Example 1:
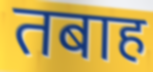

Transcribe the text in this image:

तबाह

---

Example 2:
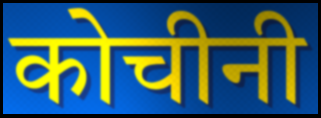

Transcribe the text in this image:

कोचीनी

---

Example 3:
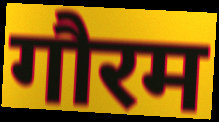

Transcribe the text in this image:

गौरम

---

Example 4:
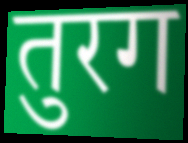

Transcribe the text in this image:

तुरग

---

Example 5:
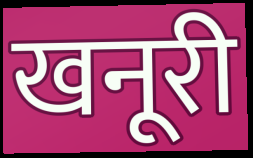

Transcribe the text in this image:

खनूरी